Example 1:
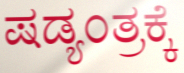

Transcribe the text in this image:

ಷಡ್ಯಂತ್ರಕ್ಕೆ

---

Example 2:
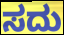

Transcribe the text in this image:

ಸದು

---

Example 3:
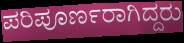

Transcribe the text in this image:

ಪರಿಪೂರ್ಣರಾಗಿದ್ದರು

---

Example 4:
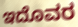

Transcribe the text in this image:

ಇದೊವರ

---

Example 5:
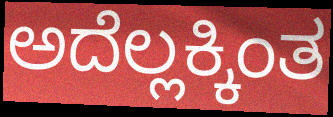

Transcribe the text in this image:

ಅದೆಲ್ಲಕ್ಕಿಂತ